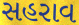
સહરાવ